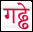
गढ्ढे